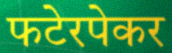
फटेरपेकर